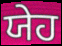
ਯੇਹ